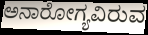
ಅನಾರೋಗ್ಯವಿರುವ